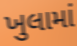
ખુલામાં